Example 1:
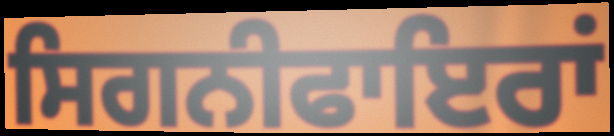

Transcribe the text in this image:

ਸਿਗਨੀਫਾਇਰਾਂ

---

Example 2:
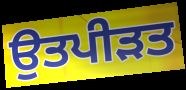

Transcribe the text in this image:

ਉਤਪੀੜਤ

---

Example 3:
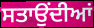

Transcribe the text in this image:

ਸਤਾਉਂਦੀਆਂ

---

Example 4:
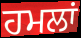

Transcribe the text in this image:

ਹਮਲਾਂ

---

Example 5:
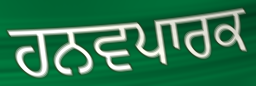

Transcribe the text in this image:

ਹਨਵਪਾਰਕ